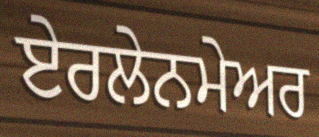
ਏਰਲੇਨਮੇਅਰ